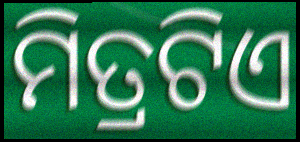
ମିତ୍ରଟିଏ